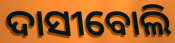
ଦାସୀବୋଲି